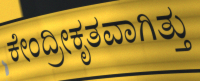
ಕೇಂದ್ರೀಕೃತವಾಗಿತ್ತು